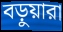
বড়ুয়ারা